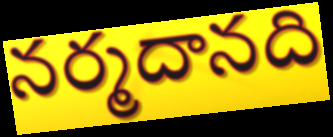
నర్మదానది